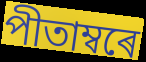
পীতাম্বৰে